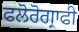
ਫਲੋਰੋਗ੍ਰਾਫੀ